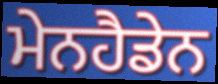
ਮੇਨਹੈਡੇਨ